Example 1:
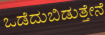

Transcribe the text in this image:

ಒಡೆದುಬಿಡುತ್ತೇನೆ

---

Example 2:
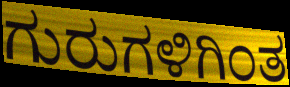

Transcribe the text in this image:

ಗುರುಗಳಿಗಿಂತ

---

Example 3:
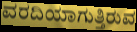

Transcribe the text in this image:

ವರದಿಯಾಗುತ್ತಿರುವ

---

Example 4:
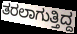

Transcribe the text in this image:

ತರಲಾಗುತ್ತಿದ್ದ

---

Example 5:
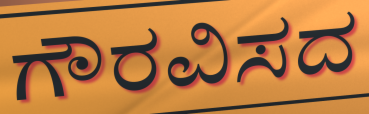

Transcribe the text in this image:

ಗೌರವಿಸದ